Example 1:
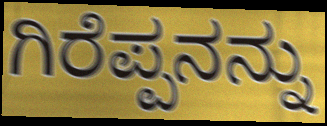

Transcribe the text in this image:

ಗಿರೆಪ್ಪನನ್ನು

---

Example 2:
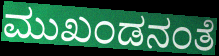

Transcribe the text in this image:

ಮುಖಂಡನಂತೆ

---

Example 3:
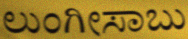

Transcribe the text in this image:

ಲುಂಗೀಸಾಬು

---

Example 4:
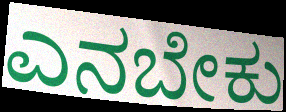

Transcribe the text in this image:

ಎನಬೇಕು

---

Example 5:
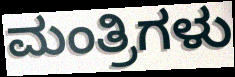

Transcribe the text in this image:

ಮಂತ್ರಿಗಳು